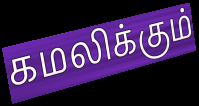
கமலிக்கும்